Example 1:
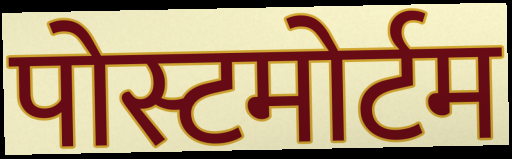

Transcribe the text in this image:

पोस्टमोर्टम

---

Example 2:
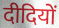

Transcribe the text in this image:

दीदियों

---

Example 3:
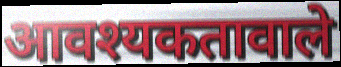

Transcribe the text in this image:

आवश्यकतावाले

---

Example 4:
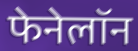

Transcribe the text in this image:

फेनेलॉन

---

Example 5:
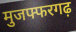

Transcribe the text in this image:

मुजफ्फरगढ़